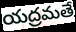
యద్రమతే